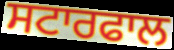
ਸਟਾਰਫਾਲ